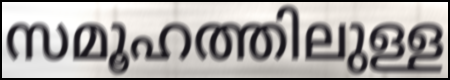
സമൂഹത്തിലുള്ള